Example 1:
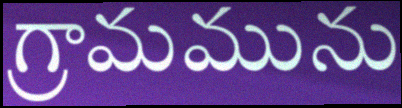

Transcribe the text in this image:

గ్రామమును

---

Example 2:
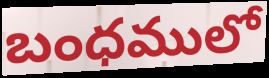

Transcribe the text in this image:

బంధములో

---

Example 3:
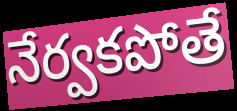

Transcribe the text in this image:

నేర్వకపోతే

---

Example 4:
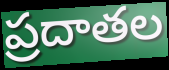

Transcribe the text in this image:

ప్రదాతల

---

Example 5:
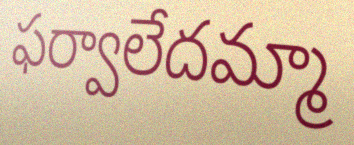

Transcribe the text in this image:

ఫర్వాలేదమ్మా